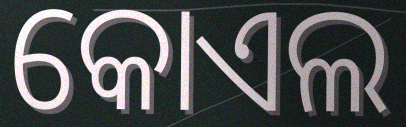
କୋଏଲ